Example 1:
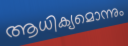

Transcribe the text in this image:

ആധിക്യമൊന്നും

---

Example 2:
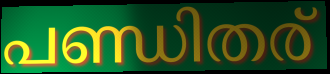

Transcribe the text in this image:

പണ്ഡിതര്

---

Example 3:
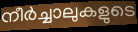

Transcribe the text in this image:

നീർച്ചാലുകളുടെ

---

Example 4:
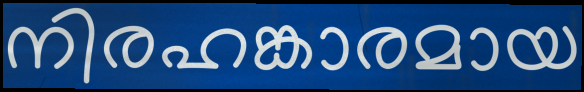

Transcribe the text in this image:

നിരഹങ്കാരമായ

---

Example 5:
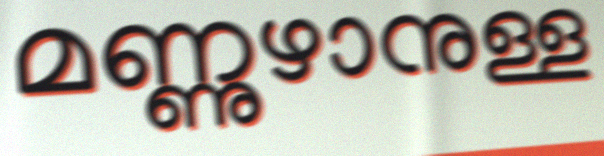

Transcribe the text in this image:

മണ്ണുഴാനുള്ള